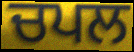
ਚਪਲ